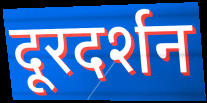
दूरदर्शन